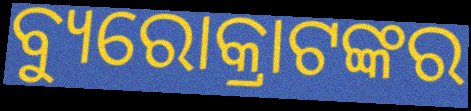
ବ୍ୟୁରୋକ୍ରାଟଙ୍କର